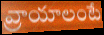
వ్రాయాలంటే